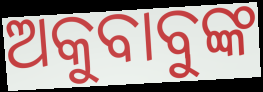
ଅକୁବାବୁଙ୍କ